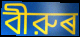
বীৰুৰ